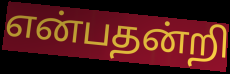
என்பதன்றி